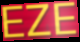
EZE